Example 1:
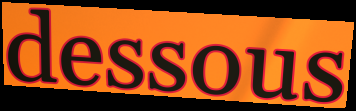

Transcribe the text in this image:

dessous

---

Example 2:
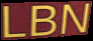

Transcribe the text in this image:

LBN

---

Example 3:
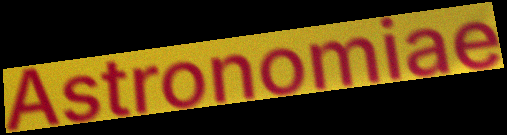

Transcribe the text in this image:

Astronomiae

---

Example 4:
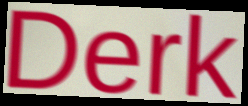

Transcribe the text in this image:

Derk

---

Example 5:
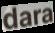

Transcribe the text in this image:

dara